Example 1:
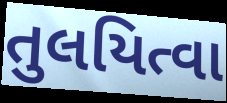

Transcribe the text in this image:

તુલયિત્વા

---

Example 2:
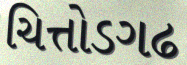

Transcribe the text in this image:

ચિત્તોડગઢ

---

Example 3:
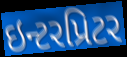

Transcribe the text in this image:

ઇન્ટરપ્રિટર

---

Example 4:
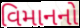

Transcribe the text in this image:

વિમાનનો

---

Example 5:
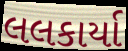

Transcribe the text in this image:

લલકાર્યા